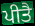
ਪੀਤੈ